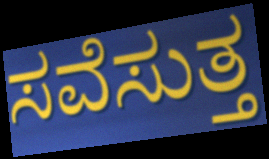
ಸವೆಸುತ್ತ